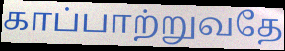
காப்பாற்றுவதே